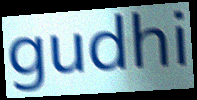
gudhi